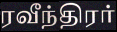
ரவீந்திரர்